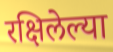
रक्षिलेल्या